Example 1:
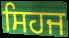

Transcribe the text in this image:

ਸਿਹਜ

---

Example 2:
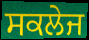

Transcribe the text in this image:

ਸਕਲੇਜ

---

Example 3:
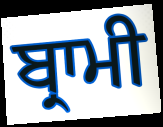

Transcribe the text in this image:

ਬ੍ਰਾਮੀ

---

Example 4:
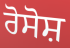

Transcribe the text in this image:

ਰੋਸੋਸ਼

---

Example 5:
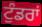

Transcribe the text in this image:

ਟੁੰਡਰਾਂ